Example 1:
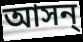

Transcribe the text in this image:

আসন্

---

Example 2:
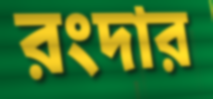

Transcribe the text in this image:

রংদার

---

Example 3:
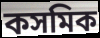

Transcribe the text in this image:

কসমিক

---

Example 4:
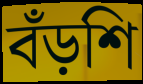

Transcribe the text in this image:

বঁড়শি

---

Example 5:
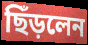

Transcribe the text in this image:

ছিঁড়লেন